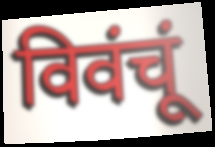
विवंचूं